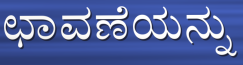
ಛಾವಣೆಯನ್ನು